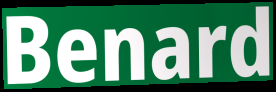
Benard